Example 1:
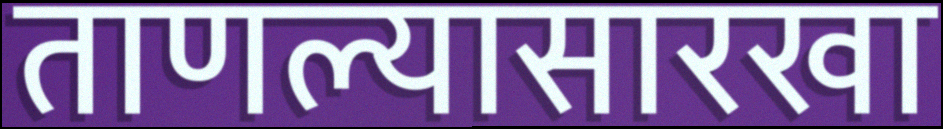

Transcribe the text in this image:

ताणल्यासारखा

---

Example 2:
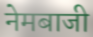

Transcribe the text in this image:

नेमबाजी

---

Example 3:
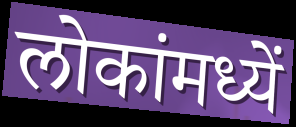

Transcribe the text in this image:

लोकांमध्यें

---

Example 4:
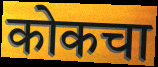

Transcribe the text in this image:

कोकचा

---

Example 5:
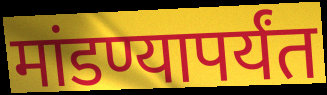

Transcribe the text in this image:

मांडण्यापर्यंत